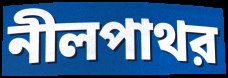
নীলপাথর